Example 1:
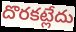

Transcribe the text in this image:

దొరకట్లేదు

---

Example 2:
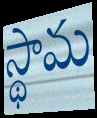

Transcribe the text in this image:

స్థామ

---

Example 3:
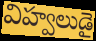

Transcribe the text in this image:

విహ్వలుడై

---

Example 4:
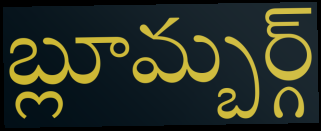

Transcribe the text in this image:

బ్లూమ్బర్గ్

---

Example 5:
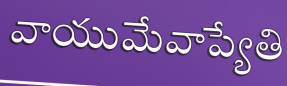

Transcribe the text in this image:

వాయుమేవాప్యేతి